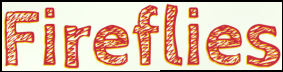
Fireflies